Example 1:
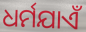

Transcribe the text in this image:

ଧର୍ମଯାଏଁ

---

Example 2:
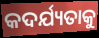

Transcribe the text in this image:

କଦର୍ଯ୍ୟତାକୁ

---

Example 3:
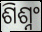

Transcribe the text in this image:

ଶିଶ୍ନଂ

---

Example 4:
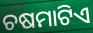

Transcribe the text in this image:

ଚଷମାଟିଏ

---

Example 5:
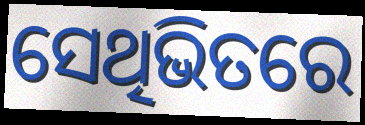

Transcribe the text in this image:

ସେଥିଭିତରେ